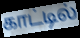
காட்டில்